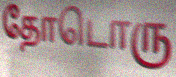
தோடொரு